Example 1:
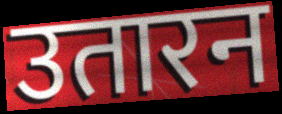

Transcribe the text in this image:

उतारन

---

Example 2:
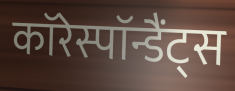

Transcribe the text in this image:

कॉरेस्पॉन्डैंट्स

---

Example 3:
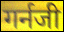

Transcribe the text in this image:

गर्नजी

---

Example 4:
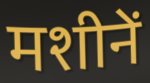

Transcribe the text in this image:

मशीनें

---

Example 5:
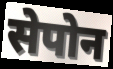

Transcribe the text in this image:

सेपोन